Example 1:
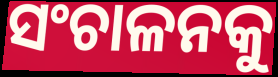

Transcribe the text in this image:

ସଂଚାଳନକୁ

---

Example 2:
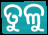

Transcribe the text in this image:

ତୁଳୁ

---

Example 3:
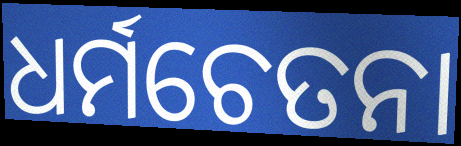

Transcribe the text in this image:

ଧର୍ମଚେତନା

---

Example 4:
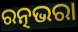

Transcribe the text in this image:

ରତ୍ନଭରା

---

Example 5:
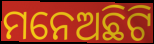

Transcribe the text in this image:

ମନେଅଛିଟି